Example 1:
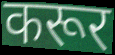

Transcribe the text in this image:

करूर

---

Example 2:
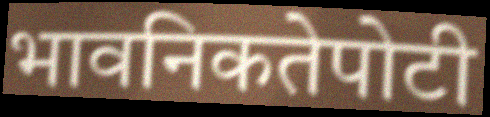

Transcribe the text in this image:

भावनिकतेपोटी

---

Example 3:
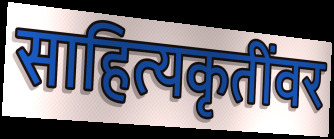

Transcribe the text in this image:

साहित्यकृतींवर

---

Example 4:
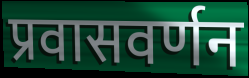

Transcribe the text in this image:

प्रवासवर्णन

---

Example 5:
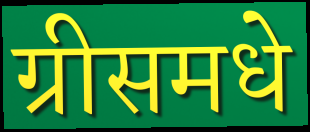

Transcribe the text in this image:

ग्रीसमधे